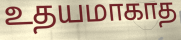
உதயமாகாத